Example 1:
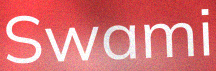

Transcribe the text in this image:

Swami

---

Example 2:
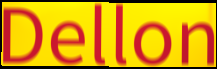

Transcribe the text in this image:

Dellon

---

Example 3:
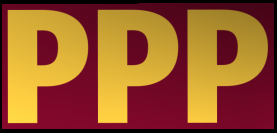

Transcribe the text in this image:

PPP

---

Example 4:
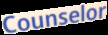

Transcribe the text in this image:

Counselor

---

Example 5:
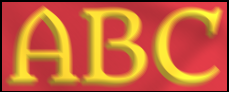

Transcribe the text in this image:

ABC